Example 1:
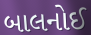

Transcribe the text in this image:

બાલનોઈ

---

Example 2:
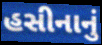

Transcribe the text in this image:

હસીનાનું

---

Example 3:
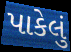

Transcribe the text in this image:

પાકેલું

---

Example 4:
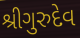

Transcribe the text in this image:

શ્રીગુરુદેવ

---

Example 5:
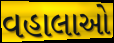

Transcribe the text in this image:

વહાલાઓ